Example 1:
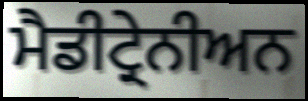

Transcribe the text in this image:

ਮੈਡੀਟ੍ਰੇਨੀਅਨ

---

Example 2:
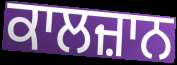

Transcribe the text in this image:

ਕਾਲਜ਼ਾਨ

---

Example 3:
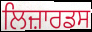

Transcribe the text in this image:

ਲਿਜ਼ਾਰਡਸ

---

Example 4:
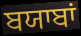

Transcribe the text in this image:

ਬਯਾਬਾਂ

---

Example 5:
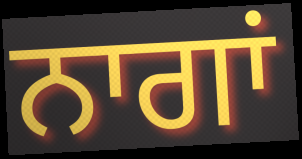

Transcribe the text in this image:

ਨਾਗਾਂ